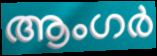
ആംഗർ